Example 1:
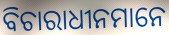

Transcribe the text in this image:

ବିଚାରାଧୀନମାନେ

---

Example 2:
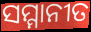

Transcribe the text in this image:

ସମ୍ମାନୀତ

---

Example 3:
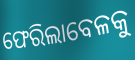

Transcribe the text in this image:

ଫେରିଲାବେଳକୁ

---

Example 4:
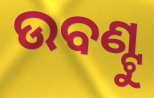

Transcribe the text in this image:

ଉବଣ୍ଟୁ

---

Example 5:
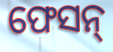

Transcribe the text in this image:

ଫେସନ୍